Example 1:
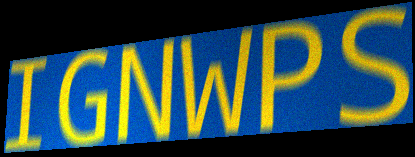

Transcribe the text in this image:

IGNWPS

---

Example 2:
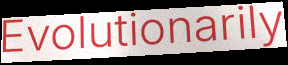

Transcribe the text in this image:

Evolutionarily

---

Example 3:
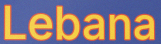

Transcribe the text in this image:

Lebana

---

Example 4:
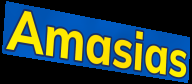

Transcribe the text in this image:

Amasias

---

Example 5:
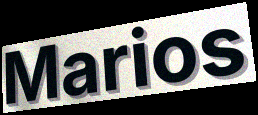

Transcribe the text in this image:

Marios